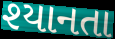
શ્યાનતા